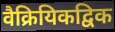
वैक्रियिकद्विक